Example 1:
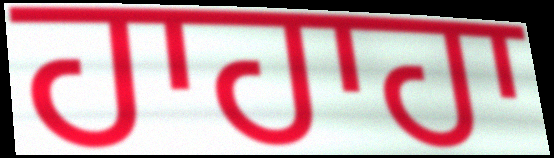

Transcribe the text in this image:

ਹਾਹਾਹਾ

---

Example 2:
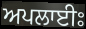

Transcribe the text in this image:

ਅਪਲਾਈਃ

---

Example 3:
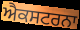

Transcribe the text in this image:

ਐਕਸਟਰਨਾ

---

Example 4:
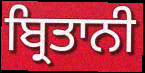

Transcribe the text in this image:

ਬ੍ਰਿਤਾਨੀ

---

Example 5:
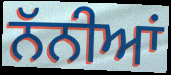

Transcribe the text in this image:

ਨੱਨੀਆਂ